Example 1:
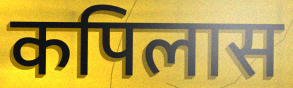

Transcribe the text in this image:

कपिलास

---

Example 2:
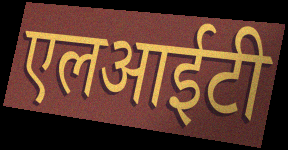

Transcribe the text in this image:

एलआईटी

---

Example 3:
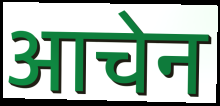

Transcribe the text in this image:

आचेन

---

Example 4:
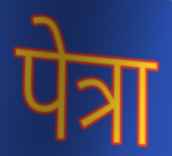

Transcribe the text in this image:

पेत्रा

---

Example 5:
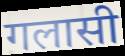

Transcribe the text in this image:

गलासी